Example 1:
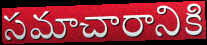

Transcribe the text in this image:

సమాచారానికి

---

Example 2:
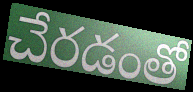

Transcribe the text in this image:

చేరడంతో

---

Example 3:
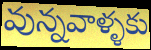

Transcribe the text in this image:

వున్నవాళ్ళకు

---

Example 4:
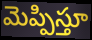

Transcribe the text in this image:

మెప్పిస్తూ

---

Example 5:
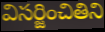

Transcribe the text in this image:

విసర్జించితిని